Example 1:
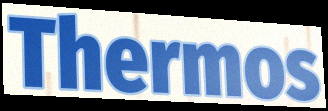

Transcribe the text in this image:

Thermos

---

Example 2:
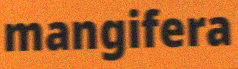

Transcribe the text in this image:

mangifera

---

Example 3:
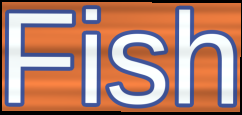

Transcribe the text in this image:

Fish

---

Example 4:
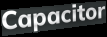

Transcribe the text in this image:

Capacitor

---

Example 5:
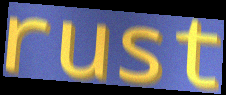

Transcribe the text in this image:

rust